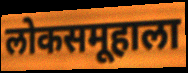
लोकसमूहाला